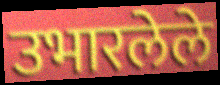
उभारलेले